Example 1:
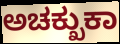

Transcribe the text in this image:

ಅಚಕ್ಖುಕಾ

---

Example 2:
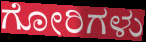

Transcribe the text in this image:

ಗೋರಿಗಳು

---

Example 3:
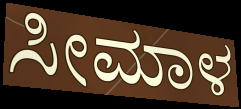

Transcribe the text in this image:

ಸೀಮಾಳ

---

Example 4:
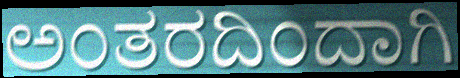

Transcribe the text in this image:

ಅಂತರದಿಂದಾಗಿ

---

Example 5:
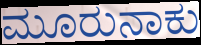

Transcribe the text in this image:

ಮೂರುನಾಕು